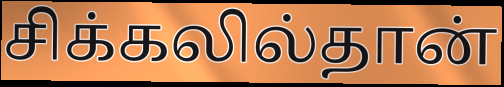
சிக்கலில்தான்